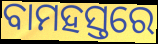
ବାମହସ୍ତରେ